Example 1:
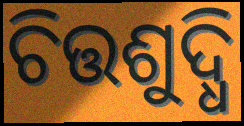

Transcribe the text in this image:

ଚିତ୍ତଶୁଦ୍ଧି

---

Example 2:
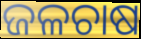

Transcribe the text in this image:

ଜଳଚାଷ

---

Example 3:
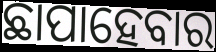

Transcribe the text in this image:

ଛାପାହେବାର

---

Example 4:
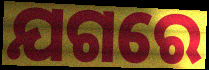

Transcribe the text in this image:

ଯଗରେ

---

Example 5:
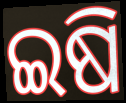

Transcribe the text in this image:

ଇଷି